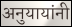
अनुयायांनी